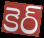
కెర్